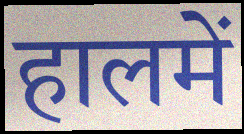
हालमें